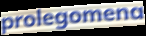
prolegomena